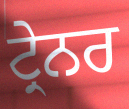
ਟ੍ਰੇਨਰ